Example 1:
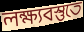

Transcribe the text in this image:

লক্ষ্যবস্তুতে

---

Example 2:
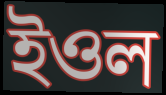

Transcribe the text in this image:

ইওল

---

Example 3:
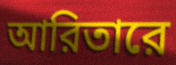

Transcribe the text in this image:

আরিতারে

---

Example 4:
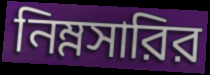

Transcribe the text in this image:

নিম্নসারির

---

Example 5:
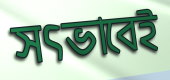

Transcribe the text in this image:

সৎভাবেই